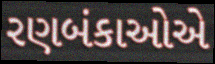
રણબંકાઓએ